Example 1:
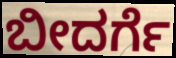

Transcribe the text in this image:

ಬೀದರ್ಗೆ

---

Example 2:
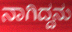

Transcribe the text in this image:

ನಾಗಿದ್ದನು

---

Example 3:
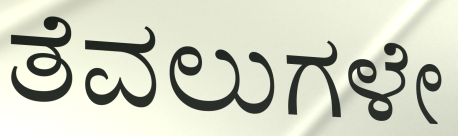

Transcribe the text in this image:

ತೆವಲುಗಳೇ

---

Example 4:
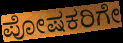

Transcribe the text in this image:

ಪೋಷಕರಿಗೇ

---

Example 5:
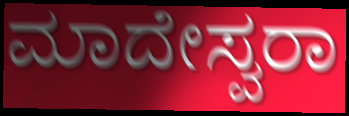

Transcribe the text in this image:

ಮಾದೇಸ್ವರಾ